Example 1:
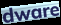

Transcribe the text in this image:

dware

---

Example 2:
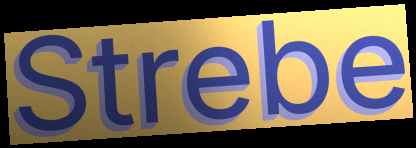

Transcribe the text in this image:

Strebe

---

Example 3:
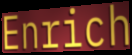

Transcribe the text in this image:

Enrich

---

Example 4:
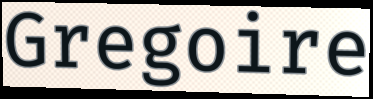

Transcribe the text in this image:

Gregoire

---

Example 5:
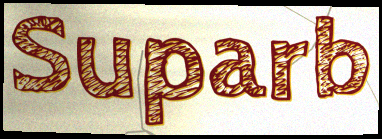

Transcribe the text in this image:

Suparb